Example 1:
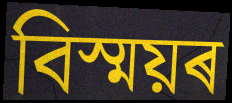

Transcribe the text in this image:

বিস্ময়ৰ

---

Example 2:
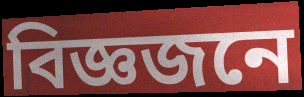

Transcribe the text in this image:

বিজ্ঞজনে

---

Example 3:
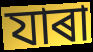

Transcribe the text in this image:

যাৰা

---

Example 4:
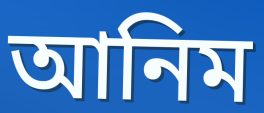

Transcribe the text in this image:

আনিম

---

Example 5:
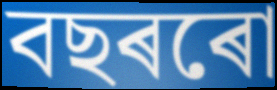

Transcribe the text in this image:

বছৰৰো